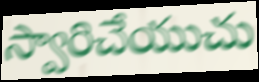
స్వారిచేయుచు